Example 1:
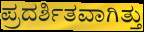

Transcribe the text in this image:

ಪ್ರದರ್ಶಿತವಾಗಿತ್ತು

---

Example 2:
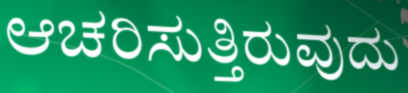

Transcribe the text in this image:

ಆಚರಿಸುತ್ತಿರುವುದು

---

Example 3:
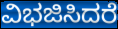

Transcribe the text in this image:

ವಿಭಜಿಸಿದರೆ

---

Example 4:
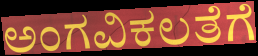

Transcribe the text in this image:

ಅಂಗವಿಕಲತೆಗೆ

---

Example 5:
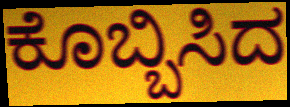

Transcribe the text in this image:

ಕೊಬ್ಬಿಸಿದ